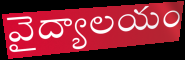
వైద్యాలయం